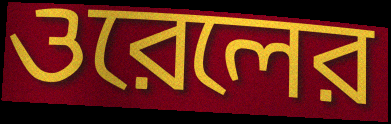
ওরেলের